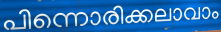
പിന്നൊരിക്കലാവാം